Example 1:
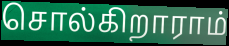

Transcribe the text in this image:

சொல்கிறாராம்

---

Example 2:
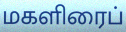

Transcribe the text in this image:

மகளிரைப்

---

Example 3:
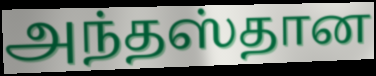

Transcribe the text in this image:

அந்தஸ்தான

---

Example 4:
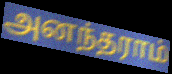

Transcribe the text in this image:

அனந்தராம்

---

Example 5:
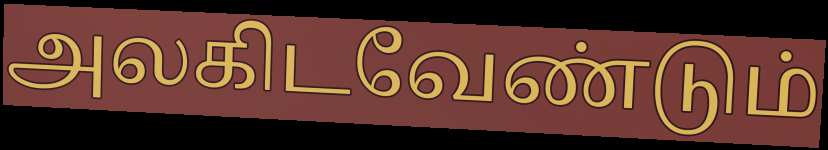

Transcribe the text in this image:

அலகிடவேண்டும்